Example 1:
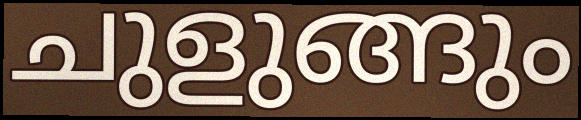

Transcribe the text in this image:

ചുളുങ്ങും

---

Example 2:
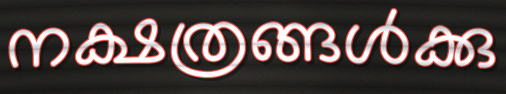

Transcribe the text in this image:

നക്ഷത്രങ്ങൾക്കു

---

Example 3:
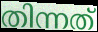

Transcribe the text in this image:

തിന്നത്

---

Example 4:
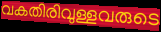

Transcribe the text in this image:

വകതിരിവുള്ളവരുടെ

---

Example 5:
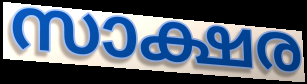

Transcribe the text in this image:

സാക്ഷര